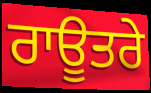
ਰਾਊਤਰੇ